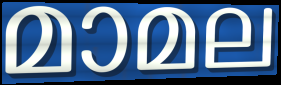
മാമല